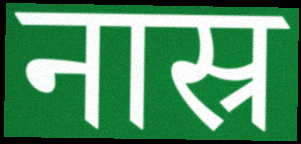
नास्र